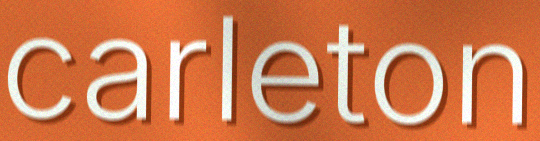
carleton